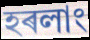
হৰলাং